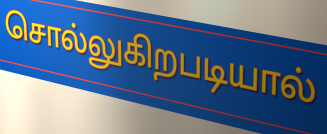
சொல்லுகிறபடியால்